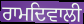
ਰਾਮਦਿਵਾਲੀ